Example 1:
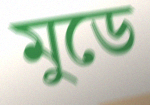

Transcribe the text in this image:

মুডে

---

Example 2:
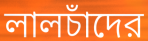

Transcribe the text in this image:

লালচাঁদের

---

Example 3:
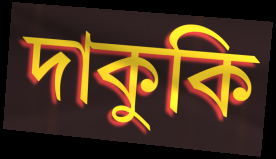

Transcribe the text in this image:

দাকুকি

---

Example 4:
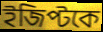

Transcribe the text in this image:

ইজিপ্টকে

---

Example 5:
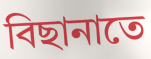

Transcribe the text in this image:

বিছানাতে